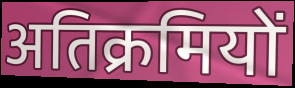
अतिक्रमियों